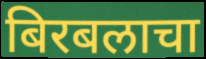
बिरबलाचा